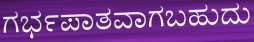
ಗರ್ಭಪಾತವಾಗಬಹುದು